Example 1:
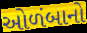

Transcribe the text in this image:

ઓળંબાનો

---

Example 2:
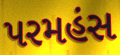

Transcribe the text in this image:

પરમહંસ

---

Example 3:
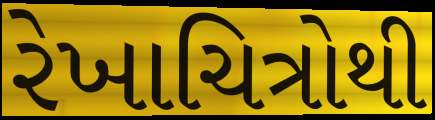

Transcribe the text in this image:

રેખાચિત્રોથી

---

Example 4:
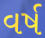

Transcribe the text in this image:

વર્ષ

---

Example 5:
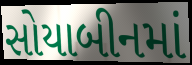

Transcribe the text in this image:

સોયાબીનમાં